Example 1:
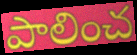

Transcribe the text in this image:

పాలించ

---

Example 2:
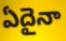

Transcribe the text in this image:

ఏదైనా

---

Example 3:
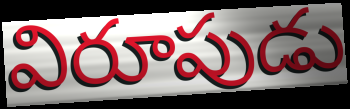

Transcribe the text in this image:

విరూపుడు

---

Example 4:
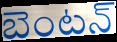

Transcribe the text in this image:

బెంటన్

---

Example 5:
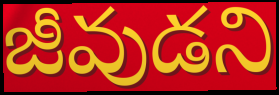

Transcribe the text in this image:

జీవుడని